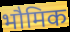
भौमिक